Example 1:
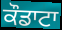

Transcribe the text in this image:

ਕੌਡਾਟਾ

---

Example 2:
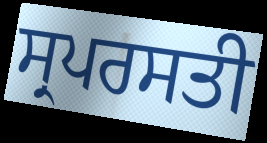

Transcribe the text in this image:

ਸ੍ਰਪਰਸਤੀ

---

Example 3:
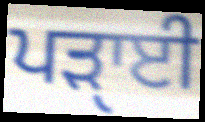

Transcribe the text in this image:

ਪੜਾੑਈ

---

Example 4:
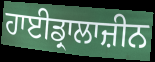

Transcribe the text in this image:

ਹਾਈਡ੍ਰਾਲਾਜ਼ੀਨ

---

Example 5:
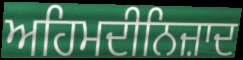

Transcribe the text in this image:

ਅਹਿਮਦੀਨਿਜ਼ਾਦ